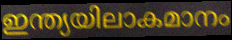
ഇന്ത്യയിലാകമാനം